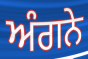
ਅੰਗਨੇ